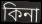
কিনা